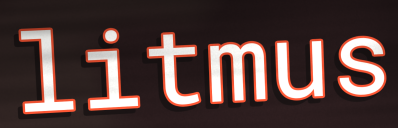
litmus